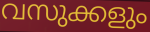
വസുക്കളും